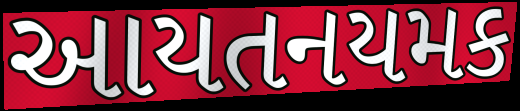
આયતનયમક